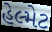
હેલ્મેટ